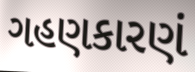
ગહણકારણં